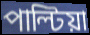
পাল্টিয়া